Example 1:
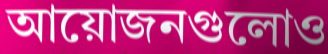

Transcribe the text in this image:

আয়োজনগুলোও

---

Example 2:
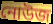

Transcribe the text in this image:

নোউজ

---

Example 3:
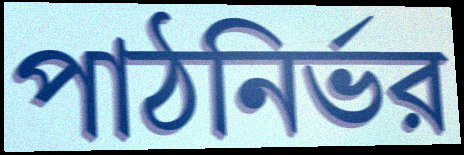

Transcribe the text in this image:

পাঠনির্ভর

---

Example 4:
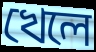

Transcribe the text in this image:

খেলে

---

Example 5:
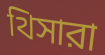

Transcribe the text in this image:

থিসারা